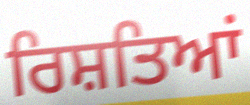
ਰਿਸ਼ਤਿਆਂ